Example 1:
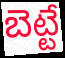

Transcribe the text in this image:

బెట్టే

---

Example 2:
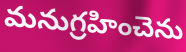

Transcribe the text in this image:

మనుగ్రహించెను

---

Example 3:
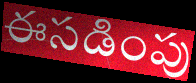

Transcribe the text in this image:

ఈసడింపు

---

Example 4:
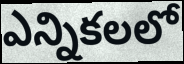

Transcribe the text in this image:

ఎన్నికలలో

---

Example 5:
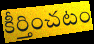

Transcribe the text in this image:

కీర్తించటం